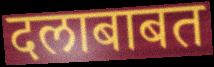
दलाबाबत